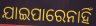
ଯାଇପାରେନାହିଁ